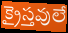
క్రైస్తవులే